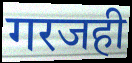
गरजही